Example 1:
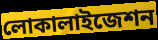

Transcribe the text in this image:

লোকালাইজেশন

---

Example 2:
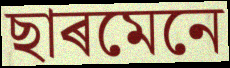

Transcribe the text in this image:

ছাৰমেনে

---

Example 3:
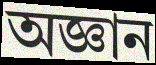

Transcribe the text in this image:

অজ্ঞান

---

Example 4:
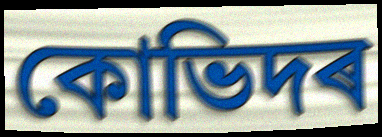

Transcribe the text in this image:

কোভিদৰ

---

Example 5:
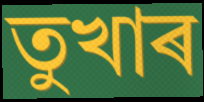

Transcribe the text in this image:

তুখাৰ